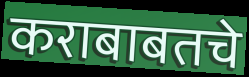
कराबाबतचे